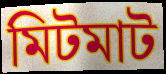
মিটমাট